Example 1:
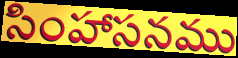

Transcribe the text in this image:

సింహాసనము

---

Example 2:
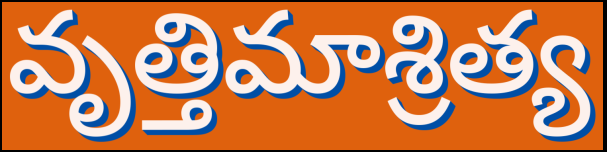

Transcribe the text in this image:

వృత్తిమాశ్రిత్య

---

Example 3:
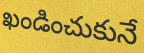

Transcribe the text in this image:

ఖండించుకునే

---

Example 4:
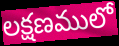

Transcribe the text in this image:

లక్షణములో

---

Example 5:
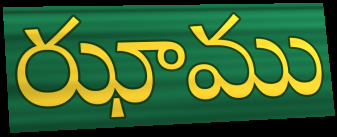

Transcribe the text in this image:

ఝాము